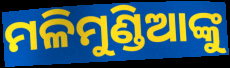
ମଳିମୁଣ୍ଡିଆଙ୍କୁ